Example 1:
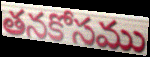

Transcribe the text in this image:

తనకోసము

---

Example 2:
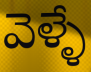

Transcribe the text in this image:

వెళ్ళే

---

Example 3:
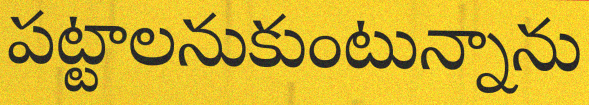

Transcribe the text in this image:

పట్టాలనుకుంటున్నాను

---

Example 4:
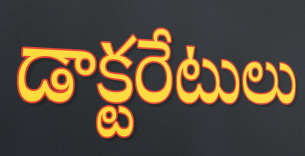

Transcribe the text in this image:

డాక్టరేటులు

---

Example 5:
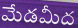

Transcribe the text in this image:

మేడమీద